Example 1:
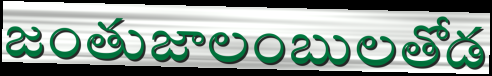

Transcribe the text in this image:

జంతుజాలంబులతోడ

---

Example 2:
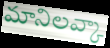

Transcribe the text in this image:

మానిలవ్కా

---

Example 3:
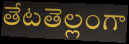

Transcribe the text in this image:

తేటతెల్లంగా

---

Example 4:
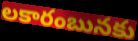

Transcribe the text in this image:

లకారంబునకు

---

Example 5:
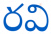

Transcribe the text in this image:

రవి